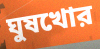
ঘুষখোর